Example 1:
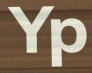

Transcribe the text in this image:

Yp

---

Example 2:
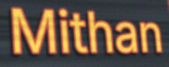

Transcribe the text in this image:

Mithan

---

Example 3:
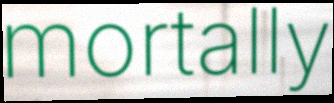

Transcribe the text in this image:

mortally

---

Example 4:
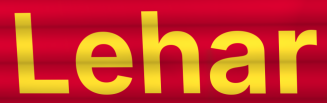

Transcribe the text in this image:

Lehar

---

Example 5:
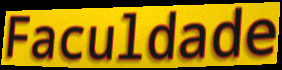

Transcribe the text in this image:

Faculdade